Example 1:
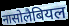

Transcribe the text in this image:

नासोलैबियल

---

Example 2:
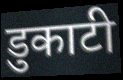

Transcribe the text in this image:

डुकाटी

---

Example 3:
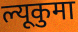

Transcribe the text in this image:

ल्यूकुमा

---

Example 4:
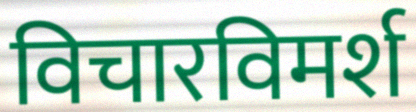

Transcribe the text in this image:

विचारविमर्श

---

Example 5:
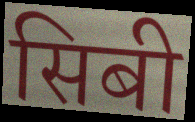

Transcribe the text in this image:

सिबी